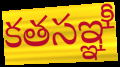
కతసఞ్ఞీ